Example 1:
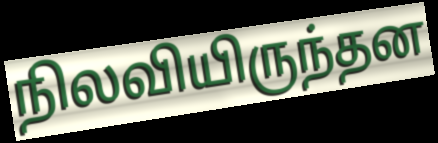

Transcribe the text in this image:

நிலவியிருந்தன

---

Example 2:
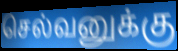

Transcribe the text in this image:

செல்வனுக்கு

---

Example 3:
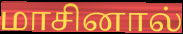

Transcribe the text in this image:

மாசினால்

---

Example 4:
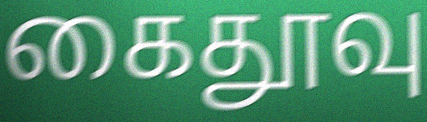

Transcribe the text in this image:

கைதூவு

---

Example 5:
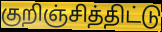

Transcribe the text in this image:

குறிஞ்சித்திட்டு